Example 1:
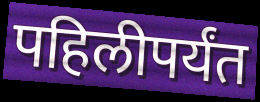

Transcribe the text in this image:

पहिलीपर्यंत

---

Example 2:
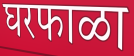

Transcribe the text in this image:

घरफाळा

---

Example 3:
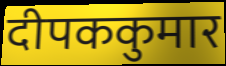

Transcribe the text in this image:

दीपककुमार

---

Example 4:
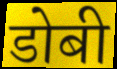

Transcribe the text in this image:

डोबी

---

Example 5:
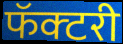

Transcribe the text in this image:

फॅक्‍टरी